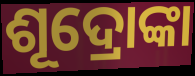
ଶୂଦ୍ରୋଙ୍କା